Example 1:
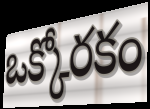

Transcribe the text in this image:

ఒక్కోరకం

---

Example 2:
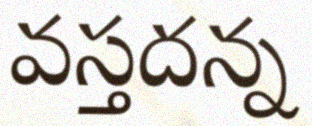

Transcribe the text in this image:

వస్తదన్న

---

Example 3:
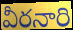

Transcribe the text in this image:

వీరనారి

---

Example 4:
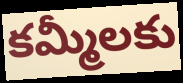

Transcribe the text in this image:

కమ్మీలకు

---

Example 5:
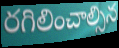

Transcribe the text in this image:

రగిలించాల్సిన